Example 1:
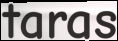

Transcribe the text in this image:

taras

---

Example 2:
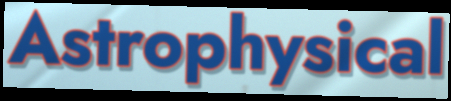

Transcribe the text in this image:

Astrophysical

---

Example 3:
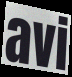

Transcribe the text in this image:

avi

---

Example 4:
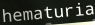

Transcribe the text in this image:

hematuria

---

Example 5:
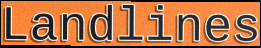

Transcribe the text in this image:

Landlines